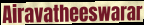
Airavatheeswarar